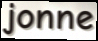
jonne